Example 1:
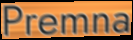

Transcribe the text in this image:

Premna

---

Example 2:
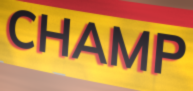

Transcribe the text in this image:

CHAMP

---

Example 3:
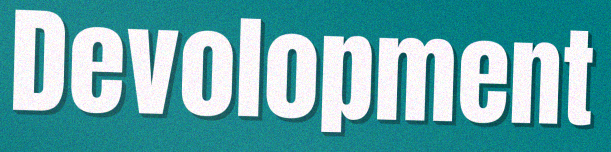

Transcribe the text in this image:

Devolopment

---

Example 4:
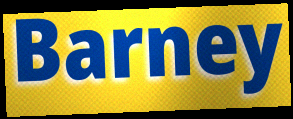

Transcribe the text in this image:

Barney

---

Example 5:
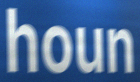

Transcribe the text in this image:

houn